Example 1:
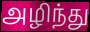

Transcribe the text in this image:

அழிந்து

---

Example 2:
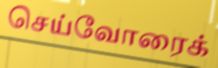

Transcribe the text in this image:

செய்வோரைக்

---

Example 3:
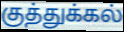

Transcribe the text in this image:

குத்துக்கல்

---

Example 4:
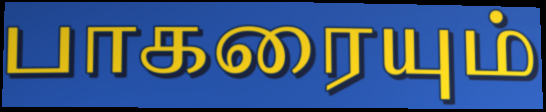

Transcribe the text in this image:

பாகரையும்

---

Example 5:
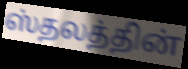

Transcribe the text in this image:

ஸ்தலத்தின்